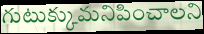
గుటుక్కుమనిపించాలని